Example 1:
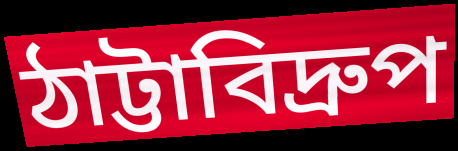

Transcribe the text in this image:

ঠাট্টাবিদ্রুপ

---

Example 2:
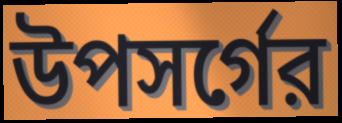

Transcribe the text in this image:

উপসর্গের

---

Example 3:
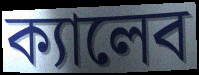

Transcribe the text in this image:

ক্যালেব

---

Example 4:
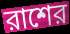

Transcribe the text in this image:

রাশের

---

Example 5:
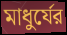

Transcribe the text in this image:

মাধুর্যের